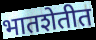
भातशेतीत